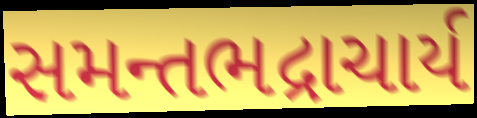
સમન્તભદ્રાચાર્ય